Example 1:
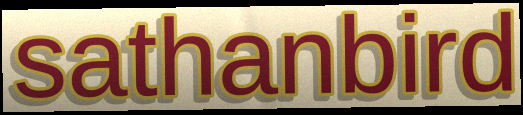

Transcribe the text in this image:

sathanbird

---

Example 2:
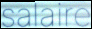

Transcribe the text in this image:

salaire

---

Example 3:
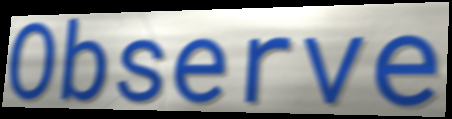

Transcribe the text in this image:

Observe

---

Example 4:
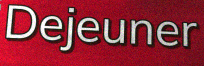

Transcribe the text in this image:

Dejeuner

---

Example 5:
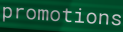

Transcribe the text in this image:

promotions